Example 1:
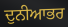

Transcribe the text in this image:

ਦੁਨੀਆਭਰ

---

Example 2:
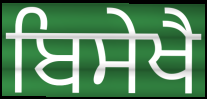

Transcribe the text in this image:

ਬਿਸੇਖੈ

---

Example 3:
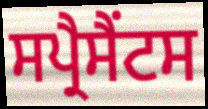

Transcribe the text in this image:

ਸਪ੍ਰੈਸੈਂਟਸ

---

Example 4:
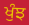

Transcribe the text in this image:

ਖੁੰਝ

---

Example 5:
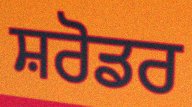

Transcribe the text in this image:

ਸ਼ਰੋਡਰ